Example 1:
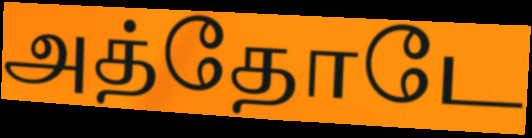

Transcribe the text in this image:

அத்தோடே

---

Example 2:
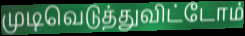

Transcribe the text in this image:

முடிவெடுத்துவிட்டோம்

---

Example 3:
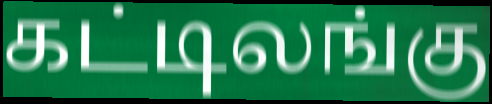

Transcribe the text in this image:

கட்டிலங்கு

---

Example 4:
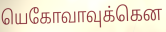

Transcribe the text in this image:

யெகோவாவுக்கென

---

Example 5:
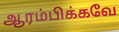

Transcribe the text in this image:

ஆரம்பிக்கவே